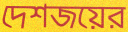
দেশজয়ের